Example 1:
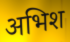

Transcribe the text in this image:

अभिश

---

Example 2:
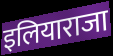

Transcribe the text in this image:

इलियाराजा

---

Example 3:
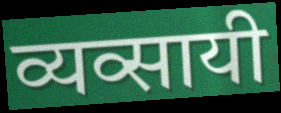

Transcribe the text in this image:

व्यव्सायी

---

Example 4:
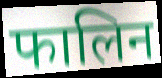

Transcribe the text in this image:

फालिन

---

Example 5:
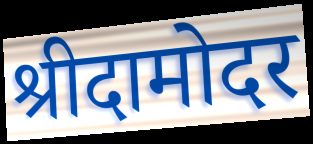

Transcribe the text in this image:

श्रीदामोदर